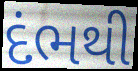
દંભથી